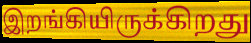
இறங்கியிருக்கிறது